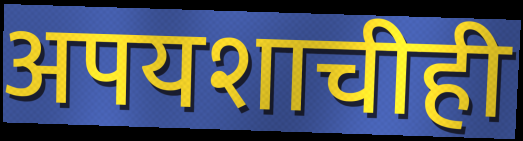
अपयशाचीही